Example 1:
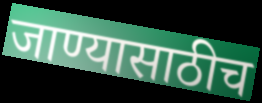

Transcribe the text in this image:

जाण्यासाठीच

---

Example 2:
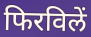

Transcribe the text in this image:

फिरविलें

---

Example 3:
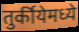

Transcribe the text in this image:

तुर्कीयेमध्ये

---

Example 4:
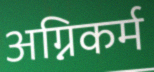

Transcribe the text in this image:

अग्निकर्म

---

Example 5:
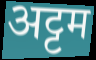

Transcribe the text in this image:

अट्टम